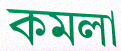
কমলা